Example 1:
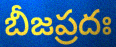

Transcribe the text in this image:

బీజప్రదః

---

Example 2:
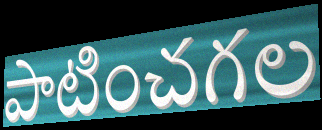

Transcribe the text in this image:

పాటించగల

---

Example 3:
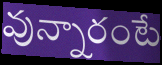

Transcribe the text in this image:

వున్నారంటే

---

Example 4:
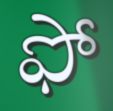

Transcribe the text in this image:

ఫో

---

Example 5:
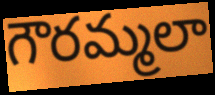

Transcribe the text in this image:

గౌరమ్మలా